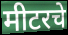
मीटरचे